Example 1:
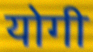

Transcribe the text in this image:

योगी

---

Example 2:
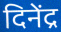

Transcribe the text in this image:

दिनेंद्र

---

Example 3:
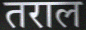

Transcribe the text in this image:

तराल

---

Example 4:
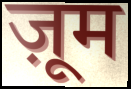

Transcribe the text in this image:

ज़ूम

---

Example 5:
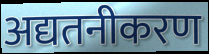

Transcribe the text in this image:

अद्यतनीकरण